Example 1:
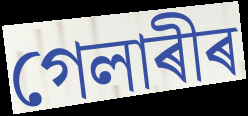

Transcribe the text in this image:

গেলাৰীৰ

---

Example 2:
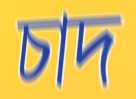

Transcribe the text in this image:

চাদ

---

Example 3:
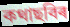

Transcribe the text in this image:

কথাছবিৰ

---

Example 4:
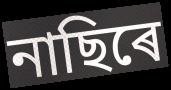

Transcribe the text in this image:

নাছিৰে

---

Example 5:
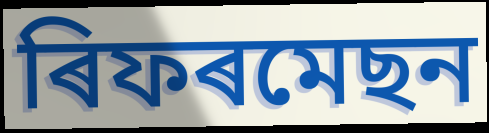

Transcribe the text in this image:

ৰিফৰমেছন